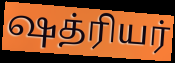
ஷத்ரியர்